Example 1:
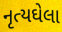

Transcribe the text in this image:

નૃત્યઘેલા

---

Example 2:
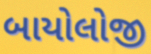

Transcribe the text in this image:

બાયોલોજી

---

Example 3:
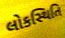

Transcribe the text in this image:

લોકસ્થિતિ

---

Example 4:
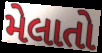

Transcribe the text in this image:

મેલાતો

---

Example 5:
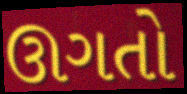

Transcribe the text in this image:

ઊગતો